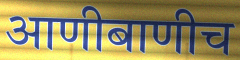
आणीबाणीच